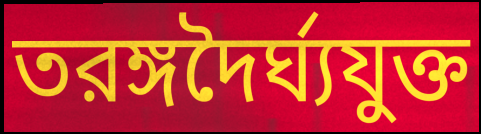
তরঙ্গদৈর্ঘ্যযুক্ত